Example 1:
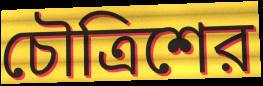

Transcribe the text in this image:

চৌত্রিশের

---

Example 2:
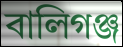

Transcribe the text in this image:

বালিগঞ্জ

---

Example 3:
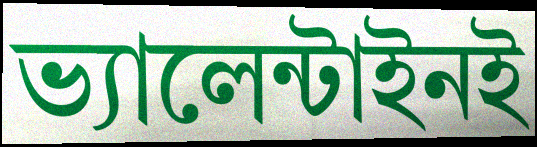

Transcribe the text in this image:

ভ্যালেন্টাইনই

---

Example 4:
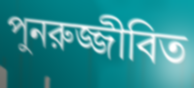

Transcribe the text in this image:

পুনরুজ্জীবিত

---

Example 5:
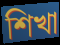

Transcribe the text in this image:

শিখা